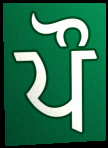
ਪੌ